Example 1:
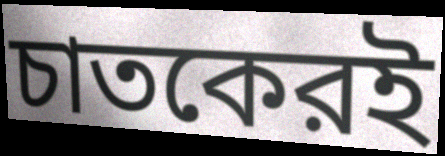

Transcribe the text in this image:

চাতকেরই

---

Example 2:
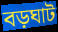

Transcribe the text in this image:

বড়ঘাট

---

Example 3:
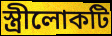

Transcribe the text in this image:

স্ত্রীলোকটি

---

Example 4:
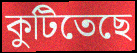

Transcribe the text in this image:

কুটিতেছে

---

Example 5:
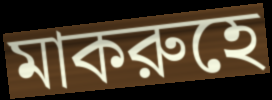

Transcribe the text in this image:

মাকরুহে